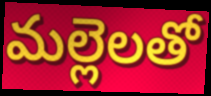
మల్లెలతో